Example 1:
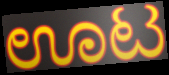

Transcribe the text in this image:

ಊಟ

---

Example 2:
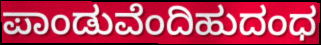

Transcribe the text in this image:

ಪಾಂಡುವೆಂದಿಹುದಂಧ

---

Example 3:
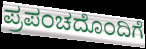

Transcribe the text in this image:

ಪ್ರಪಂಚದೊಂದಿಗೆ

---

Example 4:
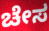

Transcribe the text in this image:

ಚೇಸ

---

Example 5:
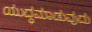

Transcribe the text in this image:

ಯುದ್ಧಮಾಡುವುದು